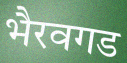
भैरवगड